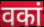
वकां